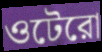
ওটেরো